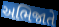
અભિજાતે